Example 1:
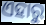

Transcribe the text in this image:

ଏହାରୁ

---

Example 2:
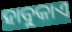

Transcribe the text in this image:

ହାବୁକାଏ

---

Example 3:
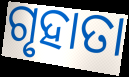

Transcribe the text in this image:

ଗୃହାତା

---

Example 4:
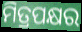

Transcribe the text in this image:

ମିତ୍ରପକ୍ଷର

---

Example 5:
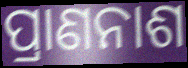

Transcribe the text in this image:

ପ୍ରାଣନାଶ